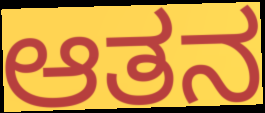
ಆತನ